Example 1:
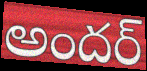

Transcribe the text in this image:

అందర్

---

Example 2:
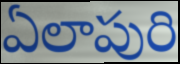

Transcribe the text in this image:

ఏలాపురి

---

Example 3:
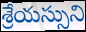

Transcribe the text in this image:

శ్రేయస్సుని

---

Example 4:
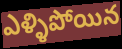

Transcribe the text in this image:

ఎళ్ళిపోయిన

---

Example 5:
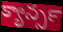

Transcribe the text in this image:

క్యాన్సర్‍